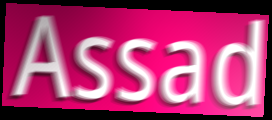
Assad